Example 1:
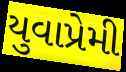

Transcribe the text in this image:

યુવાપ્રેમી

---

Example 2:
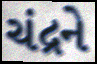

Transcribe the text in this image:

ચંદ્રને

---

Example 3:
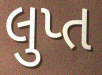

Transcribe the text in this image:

લુપ્ત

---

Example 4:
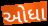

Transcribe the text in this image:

ઓધા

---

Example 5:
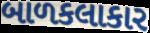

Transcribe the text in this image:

બાળકલાકાર